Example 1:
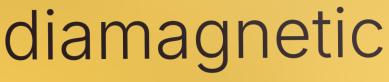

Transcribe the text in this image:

diamagnetic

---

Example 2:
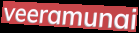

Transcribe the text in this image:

veeramunai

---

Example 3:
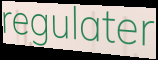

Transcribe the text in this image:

regulater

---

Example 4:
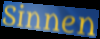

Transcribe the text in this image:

Sinnen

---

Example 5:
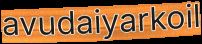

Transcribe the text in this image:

avudaiyarkoil